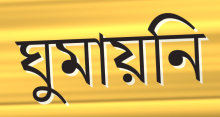
ঘুমায়নি